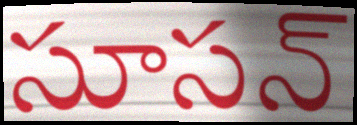
సూసన్